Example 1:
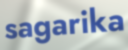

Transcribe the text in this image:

sagarika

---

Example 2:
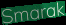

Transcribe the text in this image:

Smarak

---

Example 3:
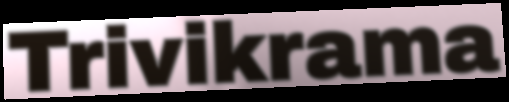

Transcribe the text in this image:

Trivikrama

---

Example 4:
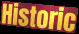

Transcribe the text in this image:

Historic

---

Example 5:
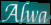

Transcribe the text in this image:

Alwa